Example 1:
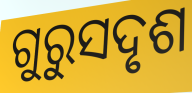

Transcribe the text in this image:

ଗୁରୁସଦୃଶ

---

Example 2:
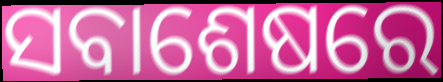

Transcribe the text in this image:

ସବାଶେଷରେ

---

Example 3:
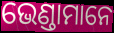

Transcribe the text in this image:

ଭେଣ୍ଡାମାନେ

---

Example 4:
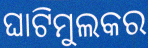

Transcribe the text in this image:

ଘାଟିମୁଲକର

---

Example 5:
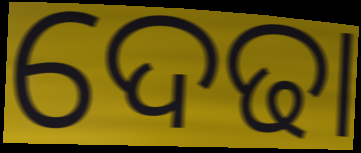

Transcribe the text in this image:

ଦେଢା